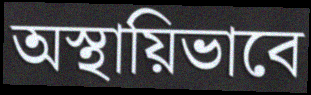
অস্থায়িভাবে